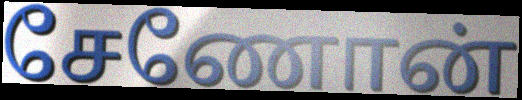
சேணோன்